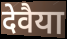
देवैया